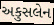
અકુસલેન